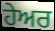
ਹੇਅਰ